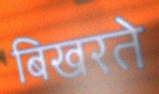
बिखरते